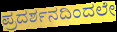
ಪ್ರದರ್ಶನದಿಂದಲೇ